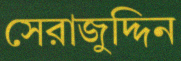
সেরাজুদ্দিন